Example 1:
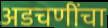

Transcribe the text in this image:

अडचणींचा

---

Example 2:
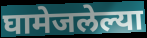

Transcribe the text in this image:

घामेजलेल्या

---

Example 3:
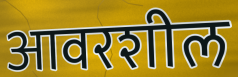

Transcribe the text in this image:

आवरशील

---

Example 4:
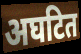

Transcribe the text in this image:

अघटित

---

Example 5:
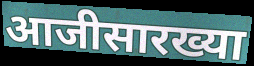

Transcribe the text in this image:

आजीसारख्या